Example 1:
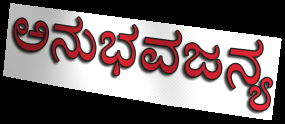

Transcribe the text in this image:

ಅನುಭವಜನ್ಯ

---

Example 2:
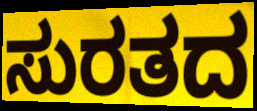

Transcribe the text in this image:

ಸುರತದ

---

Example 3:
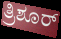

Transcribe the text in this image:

ತ್ರಿಶೂರ್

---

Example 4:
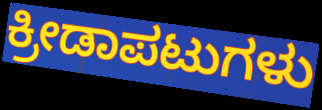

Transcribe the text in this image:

ಕ್ರೀಡಾಪಟುಗಳು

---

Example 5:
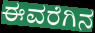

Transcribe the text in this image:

ಈವರೆಗಿನ